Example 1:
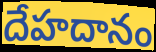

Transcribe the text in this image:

దేహదానం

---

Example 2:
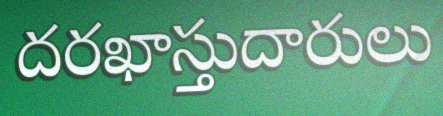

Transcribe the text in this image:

దరఖాస్తుదారులు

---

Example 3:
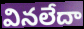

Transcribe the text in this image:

వినలేదా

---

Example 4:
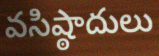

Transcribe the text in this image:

వసిష్ఠాదులు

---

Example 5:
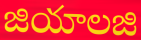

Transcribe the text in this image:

జియాలజి